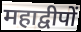
महाद्वीपों